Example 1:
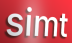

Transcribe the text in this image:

simt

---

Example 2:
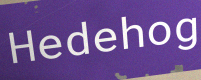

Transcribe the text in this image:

Hedehog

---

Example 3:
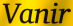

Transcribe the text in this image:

Vanir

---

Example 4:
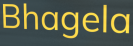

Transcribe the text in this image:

Bhagela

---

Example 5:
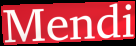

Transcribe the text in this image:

Mendi